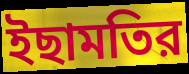
ইছামতির